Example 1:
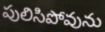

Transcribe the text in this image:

పులిసిపోవును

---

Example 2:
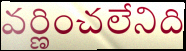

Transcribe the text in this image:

వర్ణించలేనిది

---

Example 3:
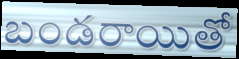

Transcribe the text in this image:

బండరాయితో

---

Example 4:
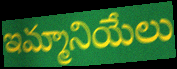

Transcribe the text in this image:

ఇమ్మానియేలు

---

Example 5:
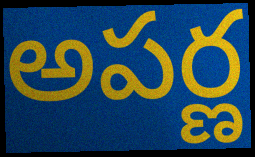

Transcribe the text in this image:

అపర్ణ